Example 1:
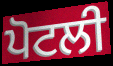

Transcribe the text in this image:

ਪੋਟਲੀ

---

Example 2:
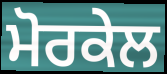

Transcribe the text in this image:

ਮੋਰਕੇਲ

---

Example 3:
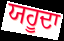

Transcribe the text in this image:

ਯਹੂਦਾ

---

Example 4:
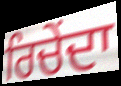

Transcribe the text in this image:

ਰਿਚੇਂਦਾ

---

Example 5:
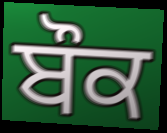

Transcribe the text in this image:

ਬੌਕ